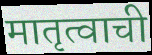
मातृत्वाची